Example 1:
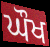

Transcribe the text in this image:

ਘੌਖ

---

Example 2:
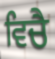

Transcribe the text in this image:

ਵਿਚੈ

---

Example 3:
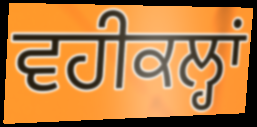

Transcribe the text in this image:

ਵਹੀਕਲ੍ਹਾਂ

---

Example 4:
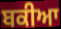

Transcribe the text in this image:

ਬਕੀਆ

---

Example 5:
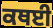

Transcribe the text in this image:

ਕਥਈ